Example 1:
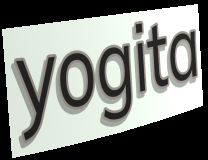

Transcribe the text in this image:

yogita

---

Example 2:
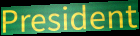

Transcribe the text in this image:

President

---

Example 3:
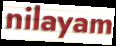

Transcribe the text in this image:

nilayam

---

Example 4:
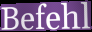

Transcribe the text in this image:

Befehl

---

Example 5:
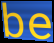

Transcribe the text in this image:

be